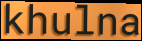
khulna